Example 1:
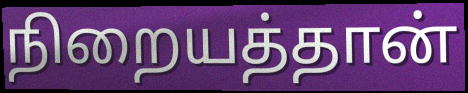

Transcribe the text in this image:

நிறையத்தான்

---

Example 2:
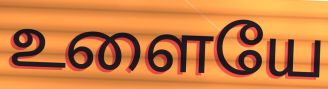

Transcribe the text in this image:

உளையே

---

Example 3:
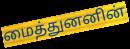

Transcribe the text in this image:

மைத்துனனின்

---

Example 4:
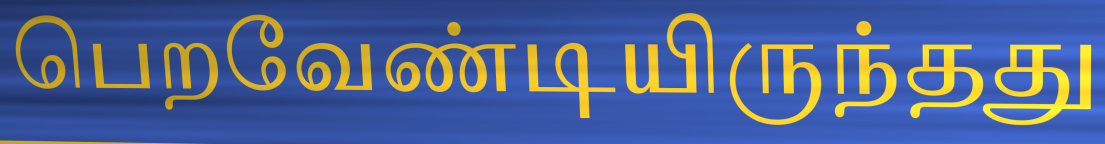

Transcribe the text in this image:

பெறவேண்டியிருந்தது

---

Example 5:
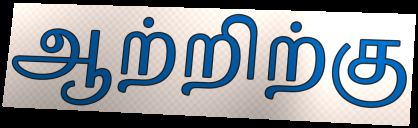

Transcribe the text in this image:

ஆற்றிற்கு